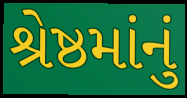
શ્રેષ્ઠમાંનું